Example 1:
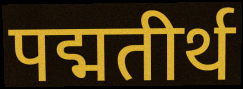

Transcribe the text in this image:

पद्मतीर्थ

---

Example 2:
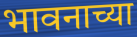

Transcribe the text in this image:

भावनाच्या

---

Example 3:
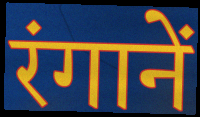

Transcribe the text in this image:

रंगानें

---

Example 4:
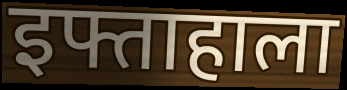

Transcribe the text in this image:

इफ्ताहाला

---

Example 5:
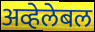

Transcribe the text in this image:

अव्हेलेबल